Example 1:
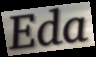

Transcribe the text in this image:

Eda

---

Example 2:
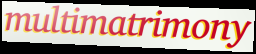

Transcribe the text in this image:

multimatrimony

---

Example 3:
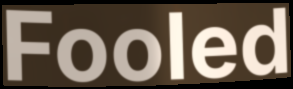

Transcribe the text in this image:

Fooled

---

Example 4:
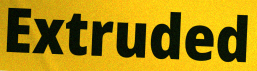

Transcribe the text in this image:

Extruded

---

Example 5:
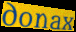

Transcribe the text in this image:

donax